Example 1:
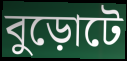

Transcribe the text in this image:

বুড়োটে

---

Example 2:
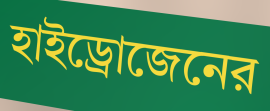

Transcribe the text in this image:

হাইড্রোজেনের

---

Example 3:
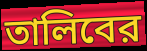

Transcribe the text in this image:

তালিবের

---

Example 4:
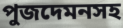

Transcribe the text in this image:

পুজদেমনসহ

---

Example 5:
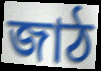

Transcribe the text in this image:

জাঠ